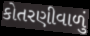
કોતરણીવાળું